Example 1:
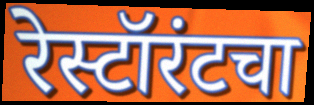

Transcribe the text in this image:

रेस्टॉरंटचा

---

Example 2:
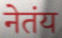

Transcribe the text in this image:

नेतंय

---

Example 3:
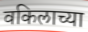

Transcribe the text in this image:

वकिलाच्या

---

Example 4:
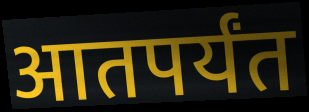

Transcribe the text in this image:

आतपर्यंत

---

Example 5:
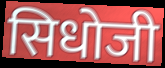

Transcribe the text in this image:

सिधोजी